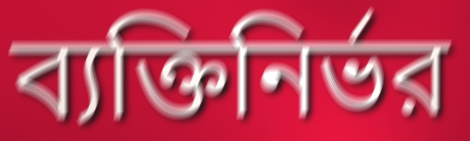
ব্যক্তিনির্ভর